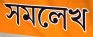
সমলেখ